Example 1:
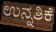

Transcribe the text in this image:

ಉನ್ನತಿಕೆ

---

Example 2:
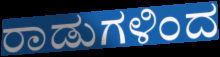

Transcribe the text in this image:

ರಾಡುಗಳಿಂದ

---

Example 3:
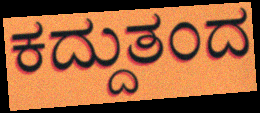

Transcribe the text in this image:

ಕದ್ದುತಂದ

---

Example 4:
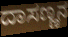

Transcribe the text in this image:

ದಾಸಣ್ಣನ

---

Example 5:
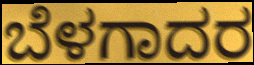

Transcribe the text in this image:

ಬೆಳಗಾದರ